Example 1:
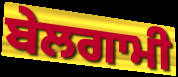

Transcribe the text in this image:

ਬੇਲਗਾਮੀ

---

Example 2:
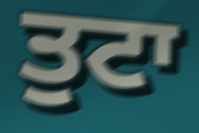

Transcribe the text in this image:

ਤੁਟਾ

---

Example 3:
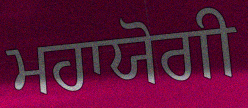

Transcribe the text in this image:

ਮਹਾਯੋਗੀ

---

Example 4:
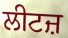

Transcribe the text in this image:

ਲੀਟਜ਼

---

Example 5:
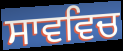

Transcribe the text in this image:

ਸਾਵਵਿਚ